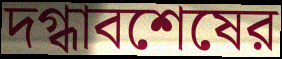
দগ্ধাবশেষের